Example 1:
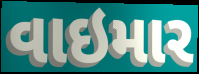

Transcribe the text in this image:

વાઇમાર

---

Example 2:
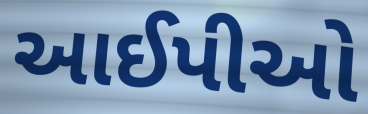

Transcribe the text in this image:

આઈપીઓ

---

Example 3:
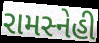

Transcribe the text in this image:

રામસ્નેહી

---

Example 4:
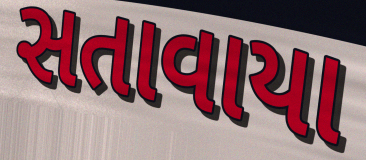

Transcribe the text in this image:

સતાવાયા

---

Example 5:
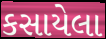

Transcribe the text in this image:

કસાયેલા